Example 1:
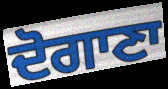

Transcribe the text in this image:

ਦੋਗਾਣਾ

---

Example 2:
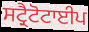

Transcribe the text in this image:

ਸਟ੍ਰੈਟੋਟਾਈਪ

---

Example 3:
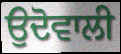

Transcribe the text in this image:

ਉਦੋਵਾਲੀ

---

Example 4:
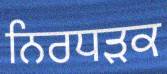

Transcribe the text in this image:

ਨਿਰਧੜਕ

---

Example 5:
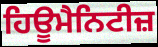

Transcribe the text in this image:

ਹਿਊਮੈਨਿਟੀਜ਼